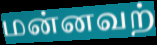
மன்னவற்